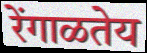
रेंगाळतेय